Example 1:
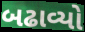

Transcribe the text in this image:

બઢાવ્યો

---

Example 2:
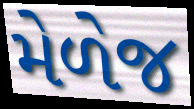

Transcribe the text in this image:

મેળેજ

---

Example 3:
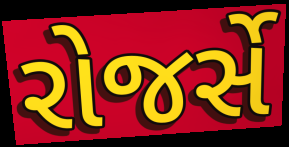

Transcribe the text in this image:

રોજર્સે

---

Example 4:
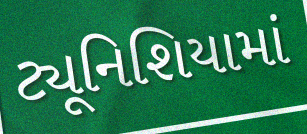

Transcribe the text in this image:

ટ્યૂનિશિયામાં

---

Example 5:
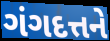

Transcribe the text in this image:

ગંગદત્તને